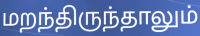
மறந்திருந்தாலும்